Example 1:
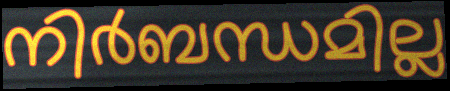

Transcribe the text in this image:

നിർബന്ധമില്ല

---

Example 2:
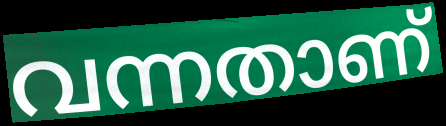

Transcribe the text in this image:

വന്നതാണ്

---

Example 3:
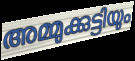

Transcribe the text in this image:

അമ്മുക്കുട്ടിയും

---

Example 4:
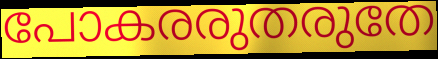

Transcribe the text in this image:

പോകരരുതരുതേ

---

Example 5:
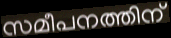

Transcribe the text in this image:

സമീപനത്തിന്